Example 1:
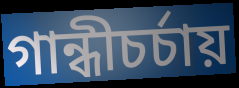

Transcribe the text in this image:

গান্ধীচর্চায়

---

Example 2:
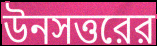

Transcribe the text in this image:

উনসত্তরের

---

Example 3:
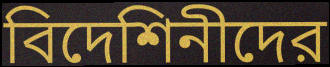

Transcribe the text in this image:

বিদেশিনীদের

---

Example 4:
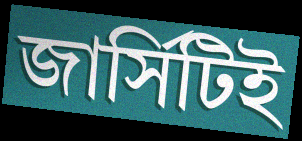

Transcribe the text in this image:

জার্সিটিই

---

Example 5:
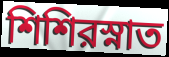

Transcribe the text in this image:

শিশিরস্নাত